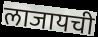
लाजायची